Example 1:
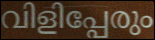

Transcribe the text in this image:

വിളിപ്പേരും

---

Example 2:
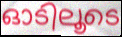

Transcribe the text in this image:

ഓടിലൂടെ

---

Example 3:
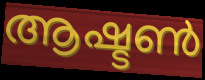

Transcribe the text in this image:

ആഷ്ടൺ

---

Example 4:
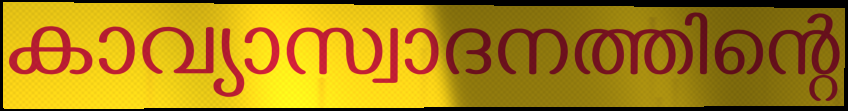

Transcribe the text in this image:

കാവ്യാസ്വാദനത്തിന്റെ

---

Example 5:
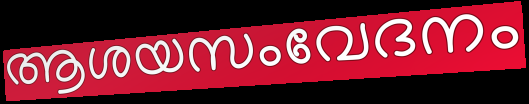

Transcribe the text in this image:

ആശയസംവേദനം